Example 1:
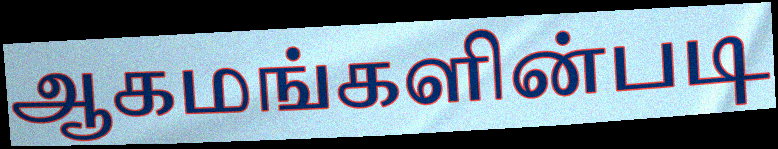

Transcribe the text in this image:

ஆகமங்களின்படி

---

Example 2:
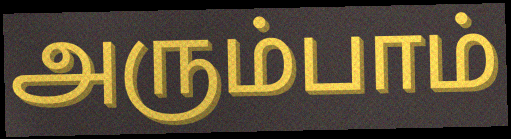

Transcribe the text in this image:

அரும்பாம்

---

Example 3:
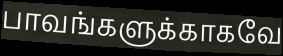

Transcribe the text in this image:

பாவங்களுக்காகவே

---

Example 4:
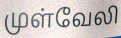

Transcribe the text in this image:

முள்வேலி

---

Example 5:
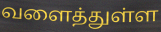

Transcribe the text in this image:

வளைத்துள்ள